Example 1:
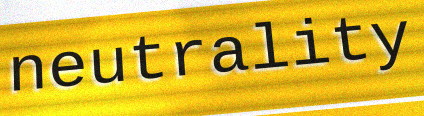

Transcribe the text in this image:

neutrality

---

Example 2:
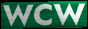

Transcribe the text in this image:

WCW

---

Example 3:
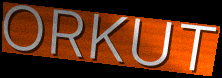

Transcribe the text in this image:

ORKUT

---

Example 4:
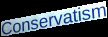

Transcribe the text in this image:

Conservatism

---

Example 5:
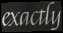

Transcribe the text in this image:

exactly